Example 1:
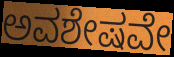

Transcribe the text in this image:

ಅವಶೇಷವೇ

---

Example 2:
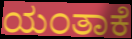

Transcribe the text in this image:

ಯಂತಾಕೆ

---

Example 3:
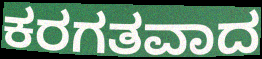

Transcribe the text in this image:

ಕರಗತವಾದ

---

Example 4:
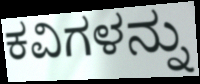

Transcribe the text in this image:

ಕವಿಗಳನ್ನು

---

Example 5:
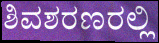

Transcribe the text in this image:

ಶಿವಶರಣರಲ್ಲಿ